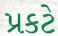
પ્રકટે